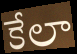
కేలా